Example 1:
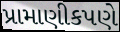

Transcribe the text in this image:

પ્રામાણીકપણે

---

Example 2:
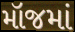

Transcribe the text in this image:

મૉજમાં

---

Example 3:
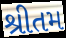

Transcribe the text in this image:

શ્રીતમ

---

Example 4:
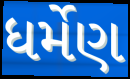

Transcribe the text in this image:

ધર્મેણ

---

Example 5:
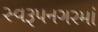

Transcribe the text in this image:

સ્વરૂપનગરમાં